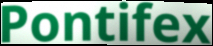
Pontifex